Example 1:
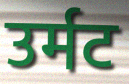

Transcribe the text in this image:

उर्मट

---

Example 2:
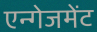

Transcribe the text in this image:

एन्गेजमेंट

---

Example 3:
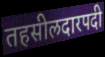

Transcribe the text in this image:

तहसीलदारपदी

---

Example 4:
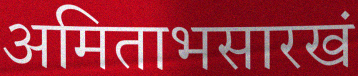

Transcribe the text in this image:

अमिताभसारखं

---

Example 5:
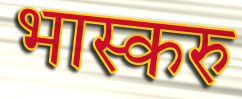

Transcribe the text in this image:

भास्करु